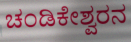
ಚಂಡಿಕೇಶ್ವರನ